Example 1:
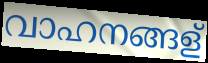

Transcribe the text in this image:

വാഹനങ്ങള്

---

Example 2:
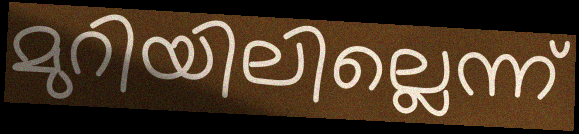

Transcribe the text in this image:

മുറിയിലില്ലെന്ന്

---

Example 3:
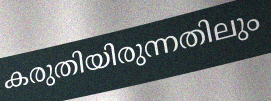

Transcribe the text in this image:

കരുതിയിരുന്നതിലും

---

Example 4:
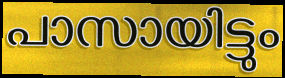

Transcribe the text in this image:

പാസായിട്ടും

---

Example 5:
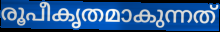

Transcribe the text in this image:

രൂപീകൃതമാകുന്നത്